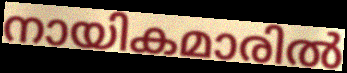
നായികമാരിൽ